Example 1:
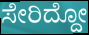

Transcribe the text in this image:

ಸೇರಿದ್ದೋ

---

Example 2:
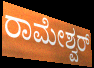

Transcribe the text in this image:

ರಾಮೇಶ್ವರ್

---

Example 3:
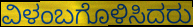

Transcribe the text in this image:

ವಿಳಂಬಗೊಳಿಸಿದರು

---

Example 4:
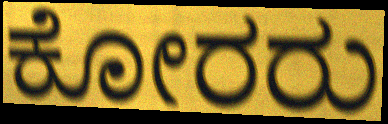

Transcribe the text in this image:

ಕೋರರು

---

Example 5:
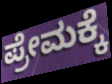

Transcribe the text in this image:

ಪ್ರೇಮಕ್ಕೆ